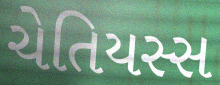
ચેતિયસ્સ